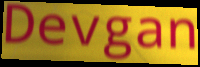
Devgan